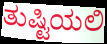
ತುಷ್ಟಿಯಲಿ